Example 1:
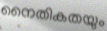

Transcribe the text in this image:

നൈതികതയും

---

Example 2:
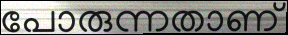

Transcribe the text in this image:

പോരുന്നതാണ്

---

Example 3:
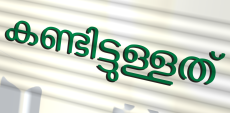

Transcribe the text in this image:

കണ്ടിട്ടുള്ളത്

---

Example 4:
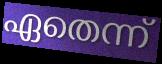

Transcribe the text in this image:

ഏതെന്ന്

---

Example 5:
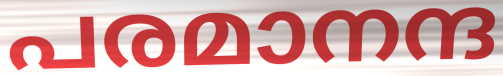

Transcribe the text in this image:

പരമാനന്ദ